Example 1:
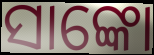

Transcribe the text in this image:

ସାଙ୍କୋ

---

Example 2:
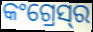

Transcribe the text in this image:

କଂଗ୍ରେସ୍‌ର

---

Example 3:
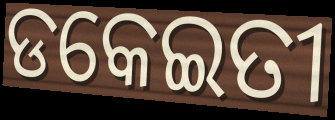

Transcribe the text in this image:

ଡକେଇତୀ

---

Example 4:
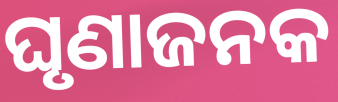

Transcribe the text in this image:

ଘୃଣାଜନକ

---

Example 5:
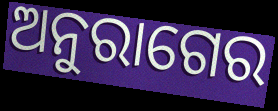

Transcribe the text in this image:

ଅନୁରାଗେର